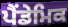
ਪੈਂਡੇਮਿਕ